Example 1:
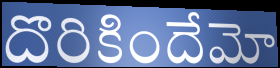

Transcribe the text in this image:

దొరికిందేమో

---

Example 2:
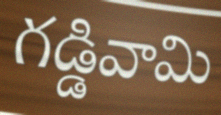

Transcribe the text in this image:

గడ్డివామి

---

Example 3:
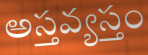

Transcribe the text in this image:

అస్తవ్యస్తం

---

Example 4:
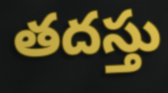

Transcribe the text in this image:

తదస్తు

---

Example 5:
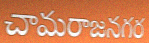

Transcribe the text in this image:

చామరాజనగర